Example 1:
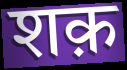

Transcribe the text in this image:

शक़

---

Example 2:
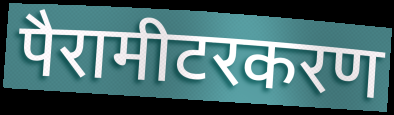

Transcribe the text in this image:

पैरामीटरकरण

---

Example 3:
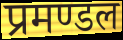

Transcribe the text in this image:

प्रमण्डल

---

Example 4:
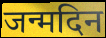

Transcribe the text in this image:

जन्मदिन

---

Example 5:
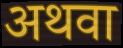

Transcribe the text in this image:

अथवा